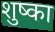
शुष्का